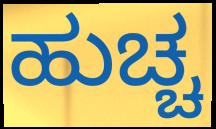
ಹುಚ್ಚ